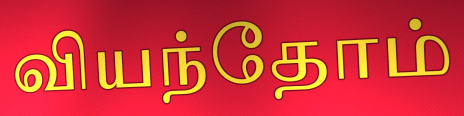
வியந்தோம்